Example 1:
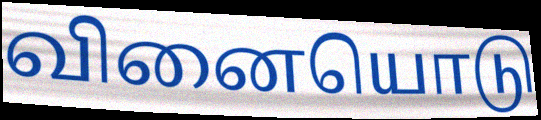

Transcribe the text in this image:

வினையொடு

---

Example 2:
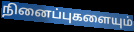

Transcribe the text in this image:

நினைப்புகளையும்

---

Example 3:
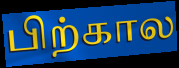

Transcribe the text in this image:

பிற்கால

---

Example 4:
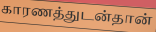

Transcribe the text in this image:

காரணத்துடன்தான்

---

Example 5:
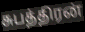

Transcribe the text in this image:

சுபத்திரன்